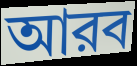
আরব